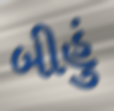
બીહું